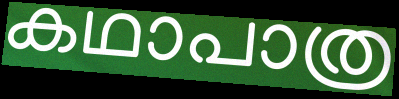
കഥാപാത്ര